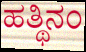
ಹತ್ಥಿನಂ